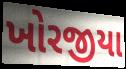
ખોરજીયા